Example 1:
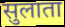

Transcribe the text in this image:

सुलाता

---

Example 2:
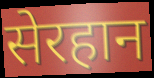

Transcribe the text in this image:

सेरहान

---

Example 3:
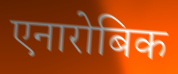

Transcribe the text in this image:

एनारोबिक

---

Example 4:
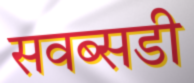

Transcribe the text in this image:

सवब्सडी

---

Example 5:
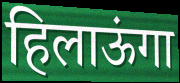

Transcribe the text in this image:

हिलाऊंगा